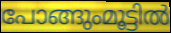
പോങ്ങുംമൂട്ടിൽ